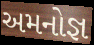
અમનોજ્ઞ